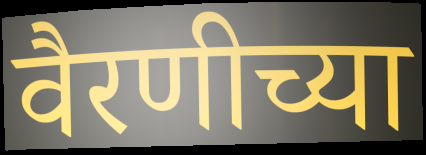
वैरणीच्या